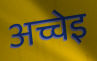
अच्चेइ